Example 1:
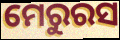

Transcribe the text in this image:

ମେରୁରସ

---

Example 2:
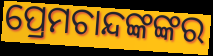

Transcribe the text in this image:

ପ୍ରେମଚାନ୍ଦଙ୍କଙ୍କର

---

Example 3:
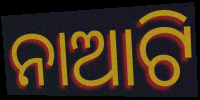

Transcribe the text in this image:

ନାଆଟି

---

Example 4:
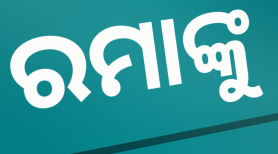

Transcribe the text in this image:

ରମାଙ୍କୁ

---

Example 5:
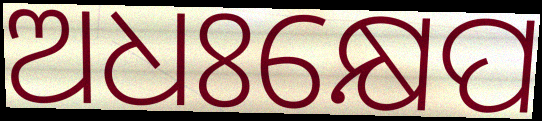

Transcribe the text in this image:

ଅଧଃକ୍ଷେପ